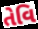
તેવિ